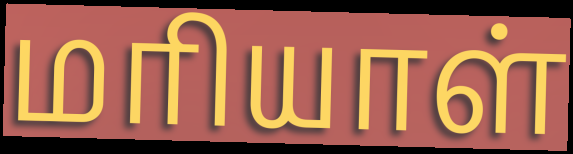
மரியாள்